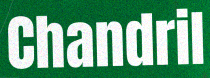
Chandril